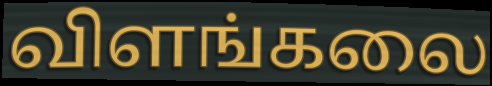
விளங்கலை